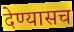
देण्यासच